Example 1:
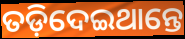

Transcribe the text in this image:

ତଡ଼ିଦେଇଥାନ୍ତେ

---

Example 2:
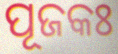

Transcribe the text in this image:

ପୂଜକଃ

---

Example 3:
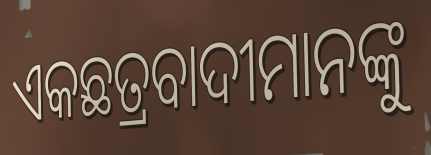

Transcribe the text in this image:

ଏକଛତ୍ରବାଦୀମାନଙ୍କୁ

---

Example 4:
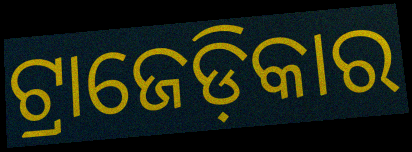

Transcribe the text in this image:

ଟ୍ରାଜେଡ଼ିକାର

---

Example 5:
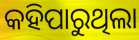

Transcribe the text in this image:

କହିପାରୁଥିଲା